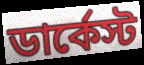
ডার্কেস্ট